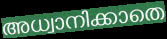
അധ്വാനിക്കാതെ